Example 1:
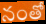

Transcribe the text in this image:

నంతో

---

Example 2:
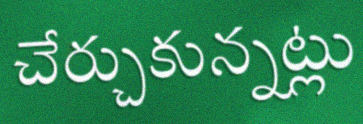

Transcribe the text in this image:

చేర్చుకున్నట్లు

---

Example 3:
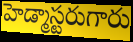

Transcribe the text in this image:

హెడ్మాస్టరుగారు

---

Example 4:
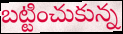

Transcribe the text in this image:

బట్టించుకున్న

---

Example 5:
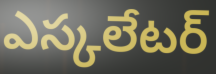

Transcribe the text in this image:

ఎస్కలేటర్